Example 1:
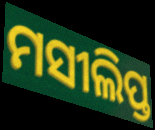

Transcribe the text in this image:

ମସୀଲିପ୍ତ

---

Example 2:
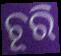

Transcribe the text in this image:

ଚୂରି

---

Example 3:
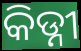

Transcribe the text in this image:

କିଡ୍ନୀ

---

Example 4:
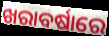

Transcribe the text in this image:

ଖରାବର୍ଷାରେ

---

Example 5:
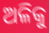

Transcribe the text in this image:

ଅଳିକୁ